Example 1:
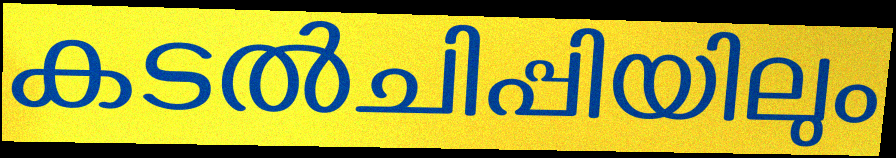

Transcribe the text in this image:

കടൽചിപ്പിയിലും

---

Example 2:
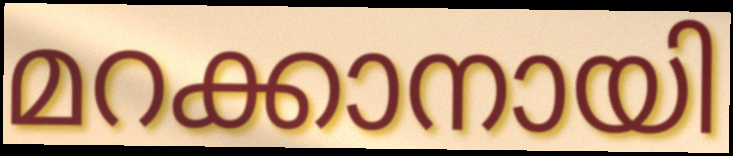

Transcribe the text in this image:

മറക്കാനായി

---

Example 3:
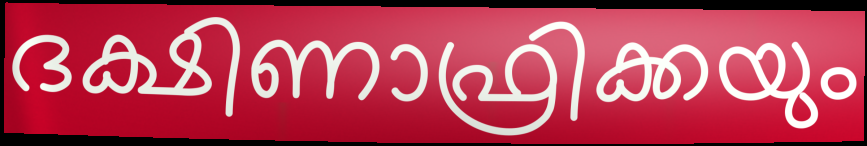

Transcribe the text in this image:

ദക്ഷിണാഫ്രിക്കയും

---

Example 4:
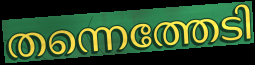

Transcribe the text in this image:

തന്നെത്തേടി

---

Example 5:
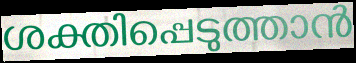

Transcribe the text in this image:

ശക്തിപ്പെടുത്താൻ